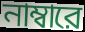
নাম্বারে